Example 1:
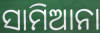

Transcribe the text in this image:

ସାମିଆନା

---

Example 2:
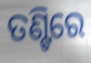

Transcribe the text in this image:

ତଣ୍ଟିରେ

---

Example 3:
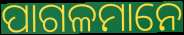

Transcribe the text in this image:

ପାଗଳମାନେ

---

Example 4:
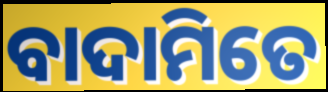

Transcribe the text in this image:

ବାଦାମିତେ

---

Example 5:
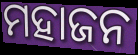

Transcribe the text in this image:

ମହାଜନ